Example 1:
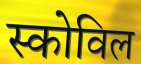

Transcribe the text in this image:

स्कोविल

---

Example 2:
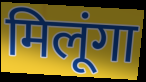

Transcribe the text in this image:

मिलूंगा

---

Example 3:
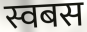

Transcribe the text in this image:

स्वबस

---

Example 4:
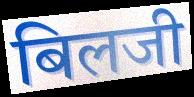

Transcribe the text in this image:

बिलजी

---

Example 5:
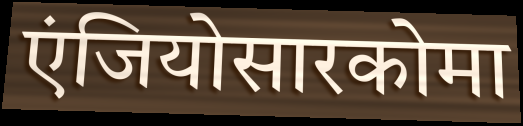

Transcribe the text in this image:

एंजियोसारकोमा